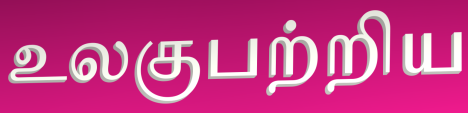
உலகுபற்றிய